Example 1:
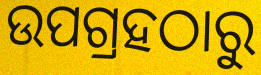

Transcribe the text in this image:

ଉପଗ୍ରହଠାରୁ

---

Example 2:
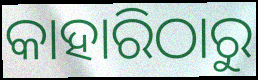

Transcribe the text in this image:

କାହାରିଠାରୁ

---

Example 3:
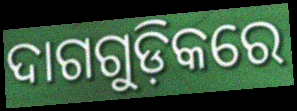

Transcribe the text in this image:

ଦାଗଗୁଡ଼ିକରେ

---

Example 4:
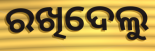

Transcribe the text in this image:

ରଖିଦେଲୁ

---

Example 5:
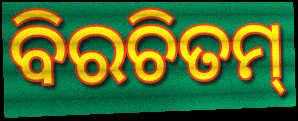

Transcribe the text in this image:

ବିରଚିତମ୍